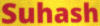
Suhash